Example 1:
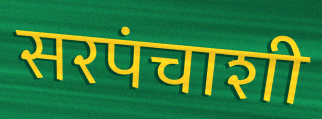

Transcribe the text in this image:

सरपंचाशी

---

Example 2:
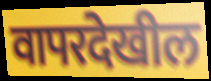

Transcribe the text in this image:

वापरदेखील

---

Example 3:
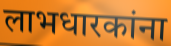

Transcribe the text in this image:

लाभधारकांना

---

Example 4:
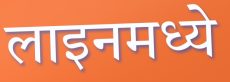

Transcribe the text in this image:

लाइनमध्ये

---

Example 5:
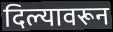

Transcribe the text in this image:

दिल्यावरून